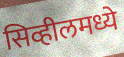
सिव्हीलमध्ये